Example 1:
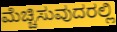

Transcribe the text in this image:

ಮೆಚ್ಚಿಸುವುದರಲ್ಲಿ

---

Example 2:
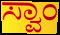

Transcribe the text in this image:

ಸ್ವಾಂ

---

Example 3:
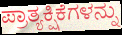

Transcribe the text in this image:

ಪ್ರಾತ್ಯಕ್ಷಿಕೆಗಳನ್ನು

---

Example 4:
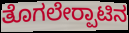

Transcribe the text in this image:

ತೊಗಲೇರ‍್ಪಾಟಿನ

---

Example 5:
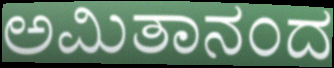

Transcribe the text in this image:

ಅಮಿತಾನಂದ